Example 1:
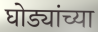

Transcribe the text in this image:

घोड्यांच्या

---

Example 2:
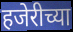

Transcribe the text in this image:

हजेरीच्या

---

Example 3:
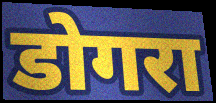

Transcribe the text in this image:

डोगरा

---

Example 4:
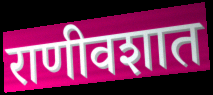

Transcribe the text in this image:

राणीवशात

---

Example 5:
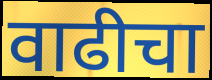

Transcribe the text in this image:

वाढीचा